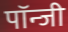
पॉन्जी